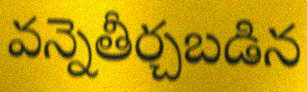
వన్నెతీర్చబడిన